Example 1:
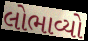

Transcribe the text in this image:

લોભાવ્યો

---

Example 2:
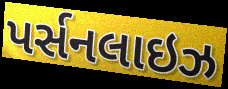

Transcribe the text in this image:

પર્સનલાઇઝ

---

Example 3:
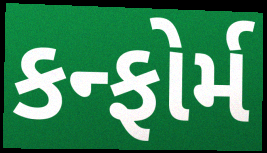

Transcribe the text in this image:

કન્ફોર્મ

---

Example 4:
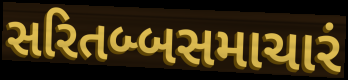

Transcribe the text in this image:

સરિતબ્બસમાચારં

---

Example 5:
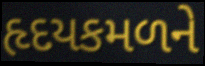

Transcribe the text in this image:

હૃદયકમળને